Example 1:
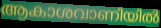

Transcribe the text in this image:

ആകാശവാണിയിൽ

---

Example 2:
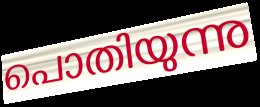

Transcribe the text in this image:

പൊതിയുന്നു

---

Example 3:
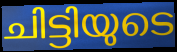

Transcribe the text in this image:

ചിട്ടിയുടെ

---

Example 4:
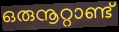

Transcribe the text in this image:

ഒരുനൂറ്റാണ്ട്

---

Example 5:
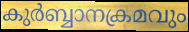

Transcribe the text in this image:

കുർബ്ബാനക്രമവും